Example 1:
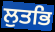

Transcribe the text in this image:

ਲੁਤਭਿ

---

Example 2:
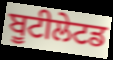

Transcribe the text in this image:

ਬੂਟੀਲੇਟਡ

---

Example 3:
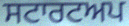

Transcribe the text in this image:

ਸਟਾਰਟਅਪ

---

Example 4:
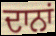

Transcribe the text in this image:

ਦਾਨਾਂ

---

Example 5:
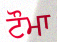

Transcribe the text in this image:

ਟੌਮਾ